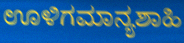
ಊಳಿಗಮಾನ್ಯಶಾಹಿ